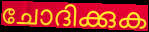
ചോദിക്കുക